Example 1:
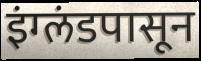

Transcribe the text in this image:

इंग्लंडपासून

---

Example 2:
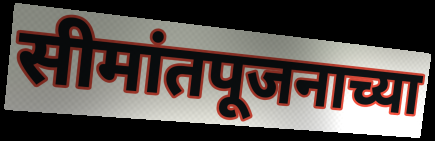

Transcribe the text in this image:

सीमांतपूजनाच्या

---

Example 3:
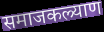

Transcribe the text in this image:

समाजकल्याण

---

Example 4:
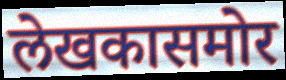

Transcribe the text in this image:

लेखकासमोर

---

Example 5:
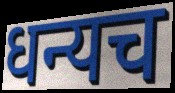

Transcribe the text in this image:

धन्यच